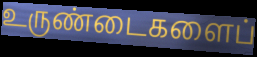
உருண்டைகளைப்